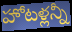
హోటళ్లన్నీ